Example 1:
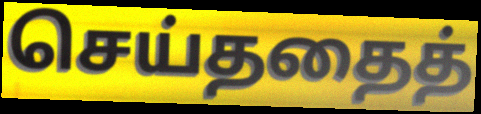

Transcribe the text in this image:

செய்ததைத்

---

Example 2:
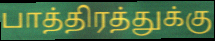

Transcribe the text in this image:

பாத்திரத்துக்கு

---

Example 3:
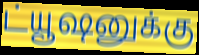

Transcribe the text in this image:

ட்யூஷனுக்கு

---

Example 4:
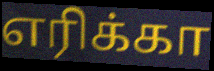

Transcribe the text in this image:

எரிக்கா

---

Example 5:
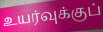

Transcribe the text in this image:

உயர்வுக்குப்